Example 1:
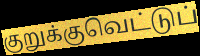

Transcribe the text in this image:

குறுக்குவெட்டுப்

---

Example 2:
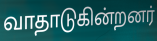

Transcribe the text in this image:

வாதாடுகின்றனர்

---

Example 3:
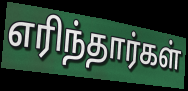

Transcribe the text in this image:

எரிந்தார்கள்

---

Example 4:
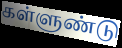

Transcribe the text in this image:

கள்ளுண்டு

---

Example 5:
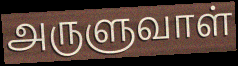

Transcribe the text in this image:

அருளுவாள்